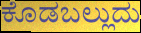
ಕೊಡಬಲ್ಲುದು